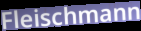
Fleischmann